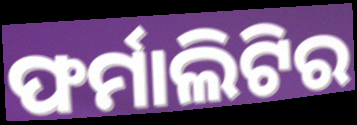
ଫର୍ମାଲିଟିର